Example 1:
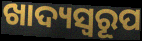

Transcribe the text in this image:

ଖାଦ୍ୟସ୍ୱରୂପ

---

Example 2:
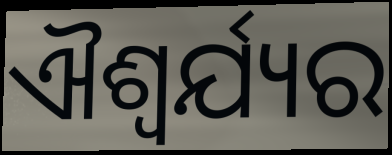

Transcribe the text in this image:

ଐଶ୍ୱର୍ଯ୍ୟର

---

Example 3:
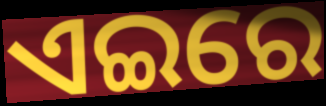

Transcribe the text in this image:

ଏଇରେ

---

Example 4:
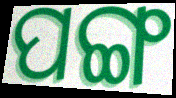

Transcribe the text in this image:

ପଙ୍ଗ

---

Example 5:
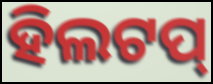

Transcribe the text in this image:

ହିଲଟପ୍